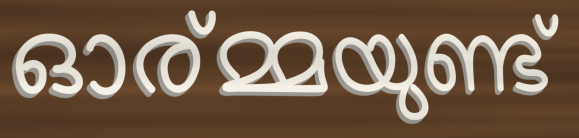
ഓര്മ്മയുണ്ട്